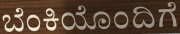
ಬೆಂಕಿಯೊಂದಿಗೆ